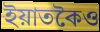
ইয়াতকৈও